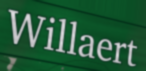
Willaert